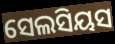
ସେଲସିୟସ